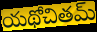
యథోచితమ్